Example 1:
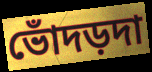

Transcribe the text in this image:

ভোঁদড়দা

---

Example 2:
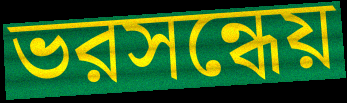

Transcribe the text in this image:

ভরসন্ধেয়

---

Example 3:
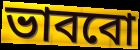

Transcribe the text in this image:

ভাববো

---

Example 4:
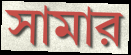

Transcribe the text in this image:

সামার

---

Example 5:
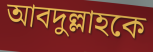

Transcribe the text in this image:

আবদুল্লাহকে